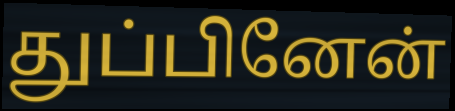
துப்பினேன்